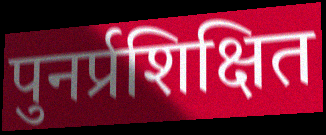
पुनर्प्रशिक्षित